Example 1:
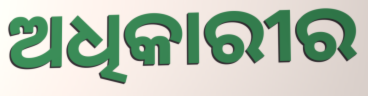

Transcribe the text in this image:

ଅଧିକାରୀର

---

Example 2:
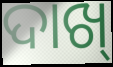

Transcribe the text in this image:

ଦାଖ୍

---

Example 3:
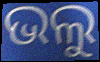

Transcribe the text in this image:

ଭଲୁ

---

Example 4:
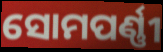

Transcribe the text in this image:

ସୋମପର୍ଣ୍ଣୀ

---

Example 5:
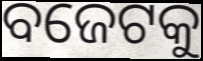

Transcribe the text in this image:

ବଜେଟକୁ